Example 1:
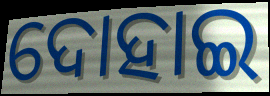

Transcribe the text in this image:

ଦୋହାଇ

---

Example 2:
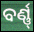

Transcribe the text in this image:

ବର୍ଣ୍ଣ୍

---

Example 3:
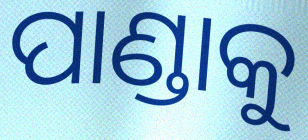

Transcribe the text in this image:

ପାଣ୍ଡାକୁ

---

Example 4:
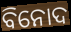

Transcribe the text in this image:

ବିନୋଦ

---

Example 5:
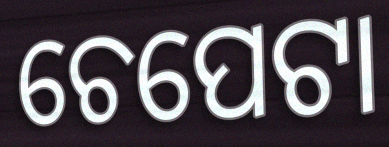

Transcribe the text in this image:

ଚେପେଟା